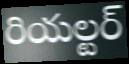
రియల్టర్